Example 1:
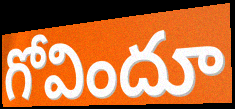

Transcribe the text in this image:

గోవిందూ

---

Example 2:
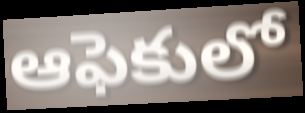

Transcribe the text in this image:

ఆఫెకులో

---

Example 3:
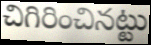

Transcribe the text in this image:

చిగిరించినట్టు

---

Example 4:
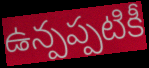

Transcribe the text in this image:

ఉన్పప్పటికీ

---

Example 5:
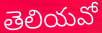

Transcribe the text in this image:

తెలియవో